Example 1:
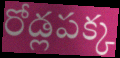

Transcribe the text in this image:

రోడ్లపక్క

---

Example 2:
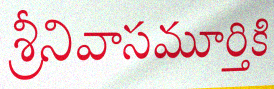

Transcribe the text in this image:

శ్రీనివాసమూర్తికి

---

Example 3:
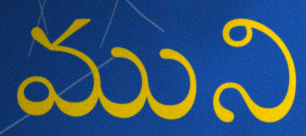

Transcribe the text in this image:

ముని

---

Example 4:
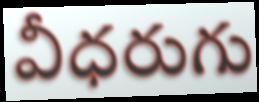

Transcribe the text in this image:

వీధరుగు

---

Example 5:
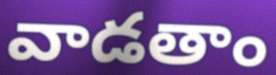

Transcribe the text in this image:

వాడతాం